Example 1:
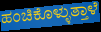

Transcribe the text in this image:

ಹಂಚಿಕೊಳ್ಳುತ್ತಾಳೆ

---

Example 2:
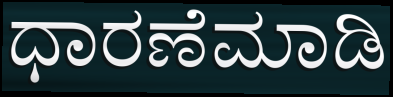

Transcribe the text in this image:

ಧಾರಣೆಮಾಡಿ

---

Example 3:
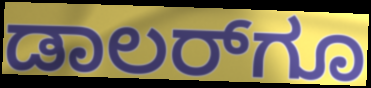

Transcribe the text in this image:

ಡಾಲರ್‌ಗೂ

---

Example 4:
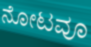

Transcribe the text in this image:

ನೋಟವೂ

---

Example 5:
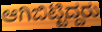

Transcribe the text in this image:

ಆಗಿಬಿಟ್ಟಿದ್ದರು